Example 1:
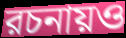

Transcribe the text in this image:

রচনায়ও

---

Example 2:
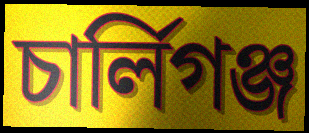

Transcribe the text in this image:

চার্লিগঞ্জ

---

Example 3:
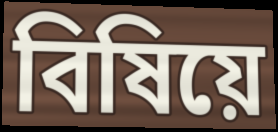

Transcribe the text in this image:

বিষিয়ে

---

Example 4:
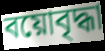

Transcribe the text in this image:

বয়োবৃদ্ধা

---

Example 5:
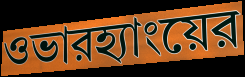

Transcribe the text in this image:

ওভারহ্যাংয়ের